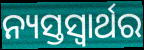
ନ୍ୟସ୍ତସ୍ଵାର୍ଥର